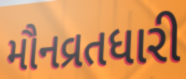
મૌનવ્રતધારી